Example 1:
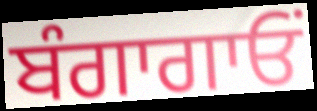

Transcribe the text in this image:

ਬੰਗਾਗਾਓਂ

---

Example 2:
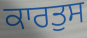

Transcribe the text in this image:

ਕਾਰਤੁਸ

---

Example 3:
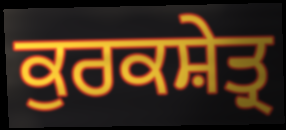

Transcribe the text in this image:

ਕੁਰਕਸ਼ੇਤ੍ਰ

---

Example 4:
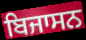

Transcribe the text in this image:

ਬਿਜਾਸਨ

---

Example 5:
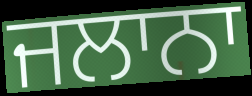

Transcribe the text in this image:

ਜਲਾਨਾ